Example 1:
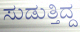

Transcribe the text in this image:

ಸುಡುತ್ತಿದ್ದ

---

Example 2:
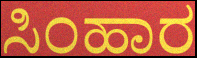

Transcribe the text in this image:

ಸಿಂಹಾರ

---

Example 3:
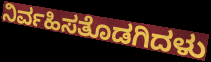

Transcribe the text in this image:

ನಿರ್ವಹಿಸತೊಡಗಿದಳು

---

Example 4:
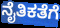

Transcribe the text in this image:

ನೈತಿಕತೆಗೆ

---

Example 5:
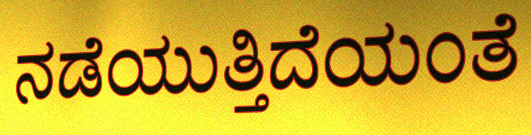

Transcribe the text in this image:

ನಡೆಯುತ್ತಿದೆಯಂತೆ